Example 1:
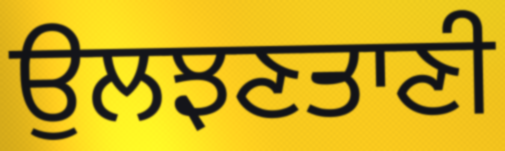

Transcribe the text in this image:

ਉਲਝਣਤਾਣੀ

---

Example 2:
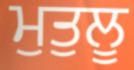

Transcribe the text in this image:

ਮੁਤੁਲੂ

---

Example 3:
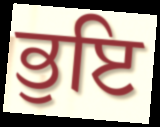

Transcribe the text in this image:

ਭੁਇ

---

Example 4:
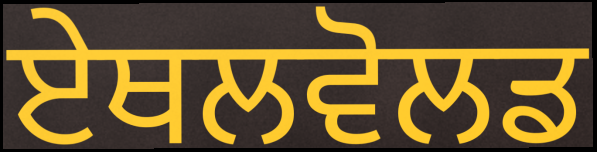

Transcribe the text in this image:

ਏਥਲਵੋਲਡ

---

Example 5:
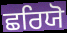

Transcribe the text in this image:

ਛਰਿਯੋ